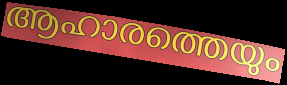
ആഹാരത്തെയും